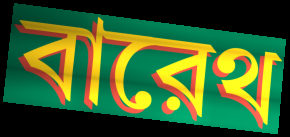
বারেথ